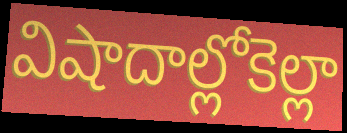
విషాదాల్లోకెల్లా